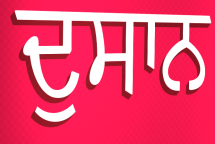
ਦੁਸਾਨ